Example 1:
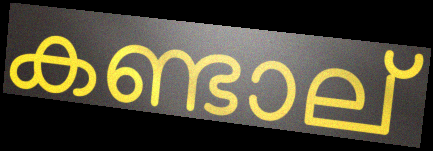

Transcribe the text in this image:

കണ്ടാല്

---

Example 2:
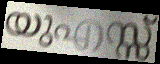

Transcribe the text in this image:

യുഎസ്സ്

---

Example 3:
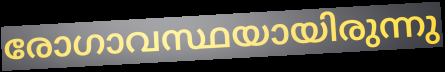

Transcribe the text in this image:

രോഗാവസ്ഥയായിരുന്നു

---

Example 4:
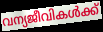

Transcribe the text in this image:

വന്യജീവികൾക്ക്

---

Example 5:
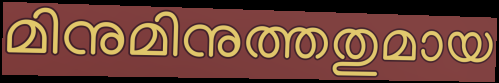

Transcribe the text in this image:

മിനുമിനുത്തതുമായ